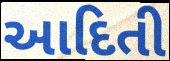
આદિતી